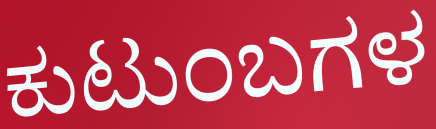
ಕುಟುಂಬಗಳ